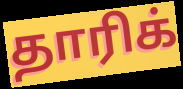
தாரிக்